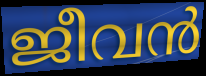
ജീവൻ